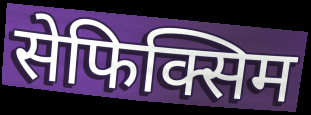
सेफिक्सिम